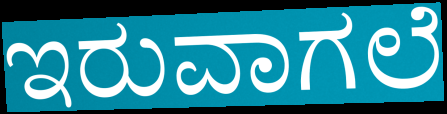
ಇರುವಾಗಲೆ